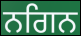
ਨਗਿਨ